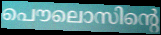
പൌലൊസിന്റെ